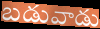
బడువాడు